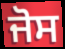
ਜੋਸ